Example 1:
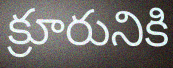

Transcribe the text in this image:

క్రూరునికి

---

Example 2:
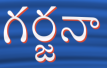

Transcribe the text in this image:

గర్జనా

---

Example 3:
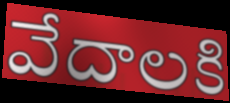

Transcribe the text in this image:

వేదాలకి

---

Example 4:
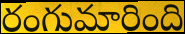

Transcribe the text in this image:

రంగుమారింది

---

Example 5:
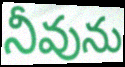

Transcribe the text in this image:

నీవును